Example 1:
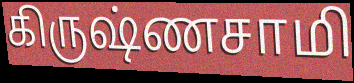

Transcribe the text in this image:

கிருஷ்ணசாமி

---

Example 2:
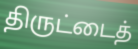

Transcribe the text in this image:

திருட்டைத்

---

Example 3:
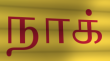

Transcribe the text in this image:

நாக்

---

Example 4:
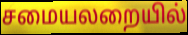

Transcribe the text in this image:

சமையலறையில்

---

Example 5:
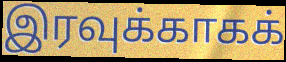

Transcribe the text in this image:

இரவுக்காகக்